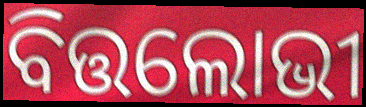
ବିତ୍ତଲୋଭୀ